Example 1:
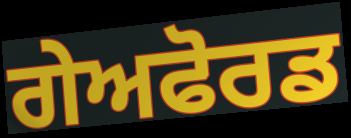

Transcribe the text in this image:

ਗੇਅਫੋਰਡ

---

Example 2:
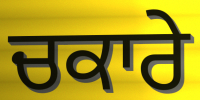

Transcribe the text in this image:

ਚਕਾਰੇ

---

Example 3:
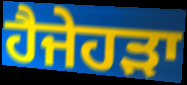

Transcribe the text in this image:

ਹੈਜੇਹੜਾ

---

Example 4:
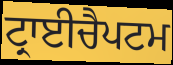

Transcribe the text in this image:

ਟ੍ਰਾਈਚੈਪਟਮ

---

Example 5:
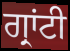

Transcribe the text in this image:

ਗ੍ਰਾਂਟੀ